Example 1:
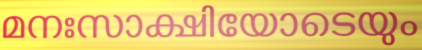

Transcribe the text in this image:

മനഃസാക്ഷിയോടെയും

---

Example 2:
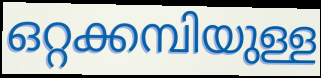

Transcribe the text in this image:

ഒറ്റക്കമ്പിയുള്ള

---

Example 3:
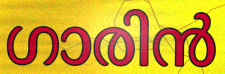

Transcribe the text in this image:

ഗാരിൻ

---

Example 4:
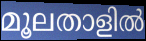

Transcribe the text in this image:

മൂലതാളിൽ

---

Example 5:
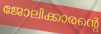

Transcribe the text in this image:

ജോലിക്കാരന്റെ